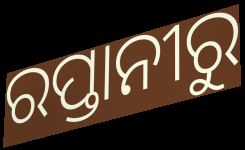
ରପ୍ତାନୀରୁ